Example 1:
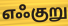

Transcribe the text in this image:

எஃகுறு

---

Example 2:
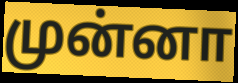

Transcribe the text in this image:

முன்னா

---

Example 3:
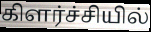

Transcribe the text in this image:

கிளர்ச்சியில்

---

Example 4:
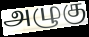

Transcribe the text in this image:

அழுகு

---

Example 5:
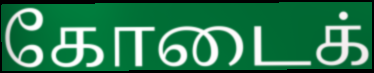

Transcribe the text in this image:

கோடைக்